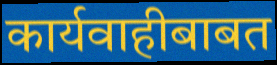
कार्यवाहीबाबत